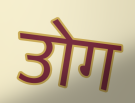
उोग